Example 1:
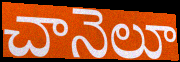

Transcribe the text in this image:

చానెలూ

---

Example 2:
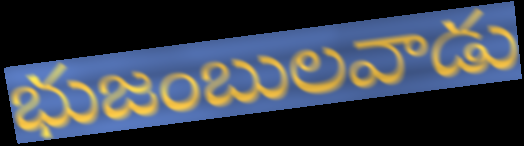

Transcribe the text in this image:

భుజంబులవాడు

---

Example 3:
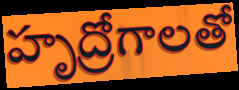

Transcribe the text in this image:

హృద్రోగాలతో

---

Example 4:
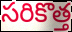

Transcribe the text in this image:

సరికొత్త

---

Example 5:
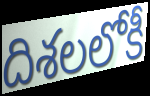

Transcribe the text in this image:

దిశలలోకీ